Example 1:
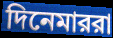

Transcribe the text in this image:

দিনেমাররা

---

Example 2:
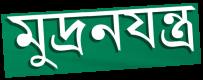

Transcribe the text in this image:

মুদ্রনযন্ত্র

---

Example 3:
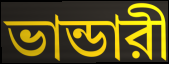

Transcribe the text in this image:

ভান্ডারী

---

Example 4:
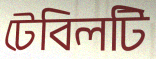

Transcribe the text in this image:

টেবিলটি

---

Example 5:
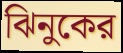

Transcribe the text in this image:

ঝিনুকের